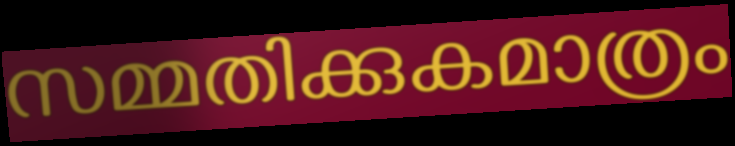
സമ്മതിക്കുകമാത്രം